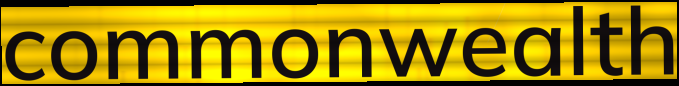
commonwealth